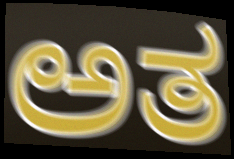
ಅತ